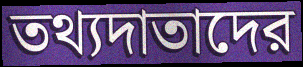
তথ্যদাতাদের